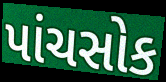
પાંચસોક